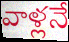
వాళ్లనే